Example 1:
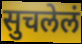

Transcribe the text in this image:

सुचलेलं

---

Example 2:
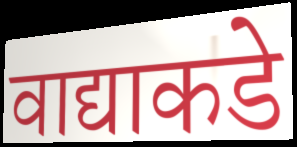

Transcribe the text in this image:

वाद्याकडे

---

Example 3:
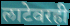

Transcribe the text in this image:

लाटेवरही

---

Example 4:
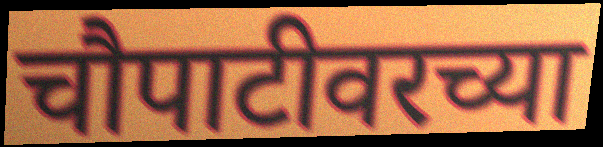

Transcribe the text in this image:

चौपाटीवरच्या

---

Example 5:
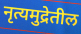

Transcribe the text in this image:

नृत्यमुद्रेतील